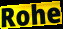
Rohe